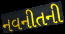
નવનીતની